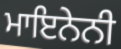
ਮਾਇਨੇਨੀ